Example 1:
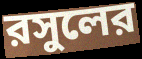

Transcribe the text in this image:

রসুলের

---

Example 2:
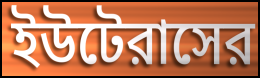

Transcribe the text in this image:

ইউটেরাসের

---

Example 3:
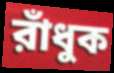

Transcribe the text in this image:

রাঁধুক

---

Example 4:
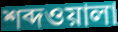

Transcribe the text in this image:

শব্দওয়ালা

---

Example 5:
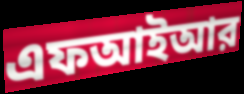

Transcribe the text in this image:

এফআইআর